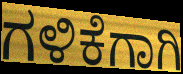
ಗಳಿಕೆಗಾಗಿ